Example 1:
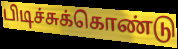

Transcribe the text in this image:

பிடிச்சுக்கொண்டு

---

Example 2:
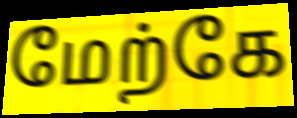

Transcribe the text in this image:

மேற்கே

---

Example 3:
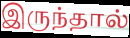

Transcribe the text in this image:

இருந்தால்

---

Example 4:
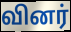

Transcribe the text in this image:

வினர்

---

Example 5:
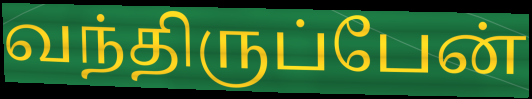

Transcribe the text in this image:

வந்திருப்பேன்